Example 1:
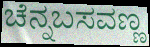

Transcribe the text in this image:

ಚೆನ್ನಬಸವಣ್ಣ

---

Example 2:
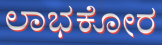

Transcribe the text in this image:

ಲಾಭಕೋರ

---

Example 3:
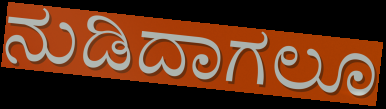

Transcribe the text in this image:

ನುಡಿದಾಗಲೂ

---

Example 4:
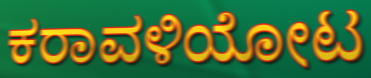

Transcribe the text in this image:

ಕರಾವಳಿಯೋಟ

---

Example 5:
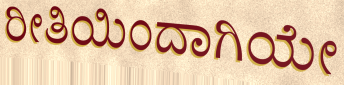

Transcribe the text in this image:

ರೀತಿಯಿಂದಾಗಿಯೇ